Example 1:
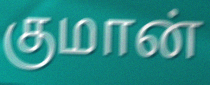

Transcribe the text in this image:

குமான்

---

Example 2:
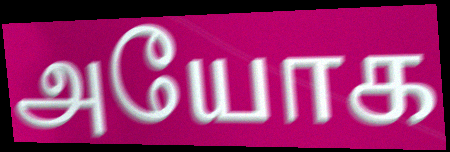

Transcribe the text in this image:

அயோக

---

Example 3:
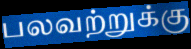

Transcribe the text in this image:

பலவற்றுக்கு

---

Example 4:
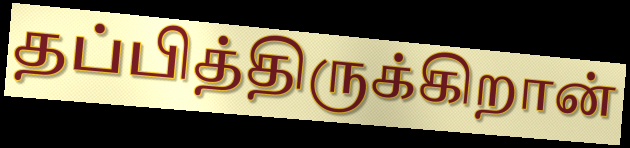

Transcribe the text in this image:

தப்பித்திருக்கிறான்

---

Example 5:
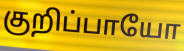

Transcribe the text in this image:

குறிப்பாயோ